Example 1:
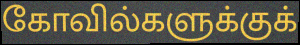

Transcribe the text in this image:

கோவில்களுக்குக்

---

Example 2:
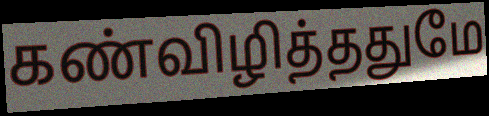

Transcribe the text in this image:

கண்விழித்ததுமே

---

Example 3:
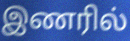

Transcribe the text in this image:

இணரில்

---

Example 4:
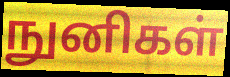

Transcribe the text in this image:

நுனிகள்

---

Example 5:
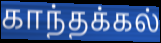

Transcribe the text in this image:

காந்தக்கல்